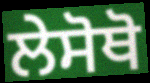
ਲੇਸੋਥੋ